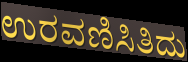
ಉರವಣಿಸಿತಿದು